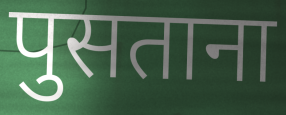
पुसताना